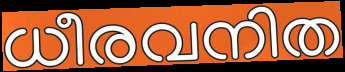
ധീരവനിത